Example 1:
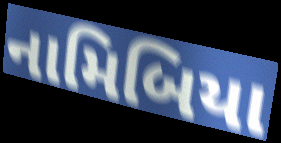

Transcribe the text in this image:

નામિબિયા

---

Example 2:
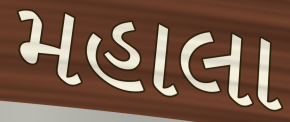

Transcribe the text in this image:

મહાલા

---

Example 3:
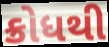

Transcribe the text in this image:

ક્રોધથી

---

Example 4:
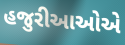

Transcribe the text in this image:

હજુરીઆઓએ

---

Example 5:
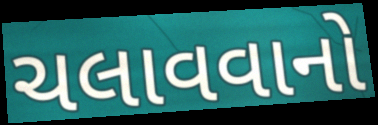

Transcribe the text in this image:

ચલાવવાનો